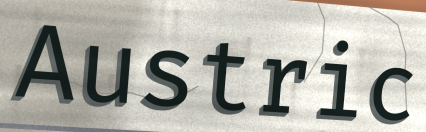
Austric